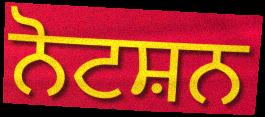
ਨੋਟਸ਼ਨ